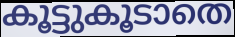
കൂട്ടുകൂടാതെ